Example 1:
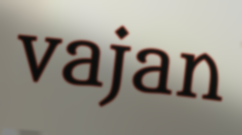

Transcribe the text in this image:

vajan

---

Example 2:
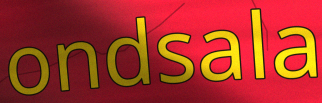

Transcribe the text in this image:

ondsala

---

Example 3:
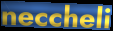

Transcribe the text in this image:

neccheli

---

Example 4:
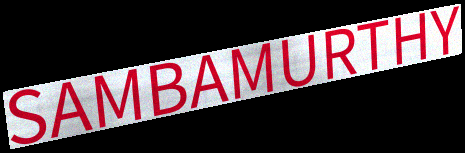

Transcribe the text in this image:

SAMBAMURTHY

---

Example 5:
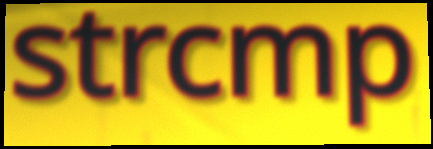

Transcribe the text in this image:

strcmp